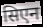
सिएन